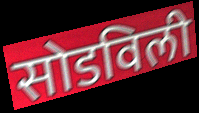
सोडविली